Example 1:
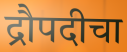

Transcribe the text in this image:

द्रौपदीचा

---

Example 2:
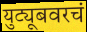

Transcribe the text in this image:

युट्यूबवरचं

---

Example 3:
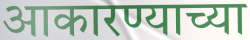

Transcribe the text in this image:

आकारण्याच्या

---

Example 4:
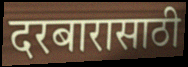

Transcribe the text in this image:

दरबारासाठी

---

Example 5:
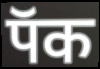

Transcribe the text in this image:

पॅक